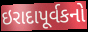
ઇરાદાપૂર્વકનો